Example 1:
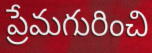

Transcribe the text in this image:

ప్రేమగురించి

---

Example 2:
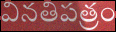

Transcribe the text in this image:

వినతిపత్రం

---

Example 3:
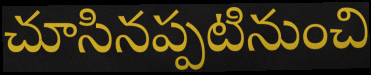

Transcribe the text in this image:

చూసినప్పటినుంచి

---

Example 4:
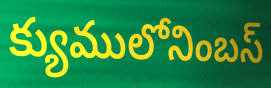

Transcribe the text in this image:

క్యుములోనింబస్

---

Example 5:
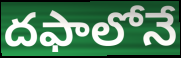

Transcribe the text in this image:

దఫాలోనే